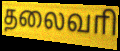
தலைவரி